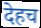
देहच